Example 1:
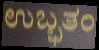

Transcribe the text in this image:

ಉಬ್ಭತಂ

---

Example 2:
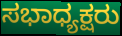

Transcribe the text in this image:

ಸಭಾಧ್ಯಕ್ಷರು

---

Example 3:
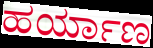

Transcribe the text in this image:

ಹರ್ಯಾಣ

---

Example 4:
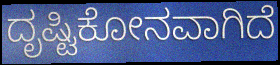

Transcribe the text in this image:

ದೃಷ್ಟಿಕೋನವಾಗಿದೆ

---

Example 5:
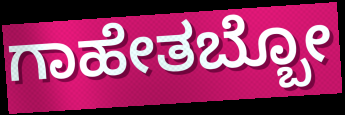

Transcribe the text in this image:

ಗಾಹೇತಬ್ಬೋ